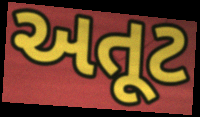
અતૂટ